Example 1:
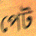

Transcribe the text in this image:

পেট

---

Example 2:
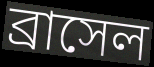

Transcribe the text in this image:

ব্রাসেল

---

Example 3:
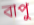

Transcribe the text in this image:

বাপু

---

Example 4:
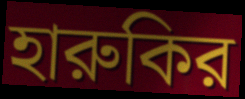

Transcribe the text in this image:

হারুকির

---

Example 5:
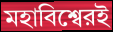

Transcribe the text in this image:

মহাবিশ্বেরই